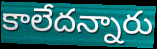
కాలేదన్నారు